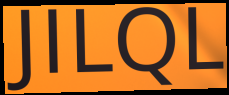
JILQL